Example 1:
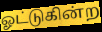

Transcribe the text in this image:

ஓட்டுகின்ற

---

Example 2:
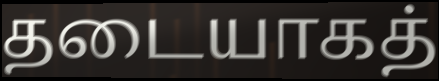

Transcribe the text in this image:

தடையாகத்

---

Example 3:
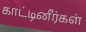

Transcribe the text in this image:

காட்டினீர்கள்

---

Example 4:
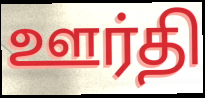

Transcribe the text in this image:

ஊர்தி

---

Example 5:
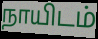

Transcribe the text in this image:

நாயிடம்